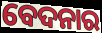
ବେଦନାର